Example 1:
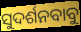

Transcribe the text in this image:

ସୁଦର୍ଶନବାବୁ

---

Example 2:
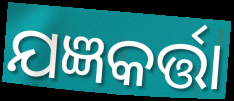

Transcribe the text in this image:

ଯଜ୍ଞକର୍ତ୍ତା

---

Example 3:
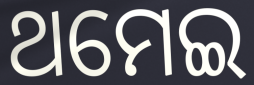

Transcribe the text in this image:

ଥମେଇ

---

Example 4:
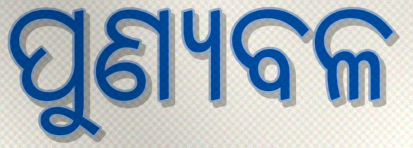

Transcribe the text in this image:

ପୁଣ୍ୟବଳ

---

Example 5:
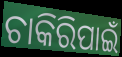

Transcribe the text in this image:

ଚାକିରିପାଇଁ